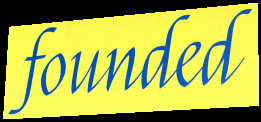
founded